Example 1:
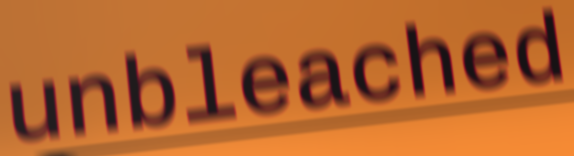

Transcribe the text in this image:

unbleached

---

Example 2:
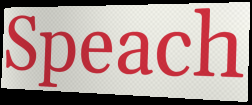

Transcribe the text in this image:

Speach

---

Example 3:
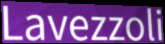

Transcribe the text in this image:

Lavezzoli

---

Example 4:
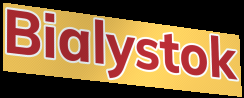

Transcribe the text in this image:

Bialystok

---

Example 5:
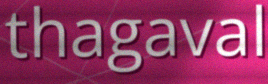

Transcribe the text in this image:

thagaval